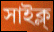
সাইক্ল্